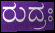
ರುದ್ರಃ